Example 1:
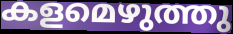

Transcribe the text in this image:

കളമെഴുത്തു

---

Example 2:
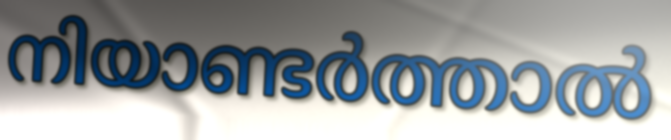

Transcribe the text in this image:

നിയാണ്ടർത്താൽ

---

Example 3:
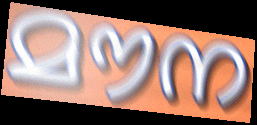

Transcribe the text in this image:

മൗന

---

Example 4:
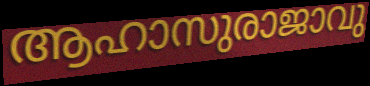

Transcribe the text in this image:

ആഹാസുരാജാവു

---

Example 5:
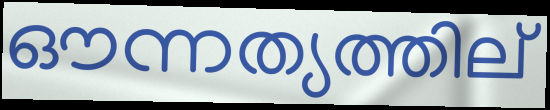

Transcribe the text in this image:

ഔന്നത്യത്തില്